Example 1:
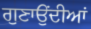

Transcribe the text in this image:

ਗੁਣਾਉਂਦੀਆਂ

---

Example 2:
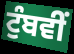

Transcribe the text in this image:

ਟੁੰਬਵੀਂ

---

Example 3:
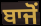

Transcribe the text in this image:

ਬਾਜੋਂ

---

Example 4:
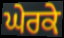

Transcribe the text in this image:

ਘੇਰਕੇ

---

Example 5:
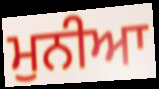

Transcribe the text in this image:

ਮੁਨੀਆ